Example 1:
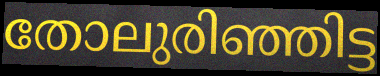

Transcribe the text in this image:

തോലുരിഞ്ഞിട്ട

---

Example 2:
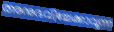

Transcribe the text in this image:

അനുഭവിച്ചേക്കാവുന്ന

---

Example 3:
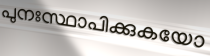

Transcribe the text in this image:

പുനഃസ്ഥാപിക്കുകയോ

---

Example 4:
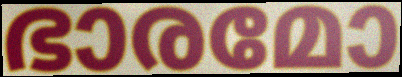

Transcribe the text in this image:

ഭാരമോ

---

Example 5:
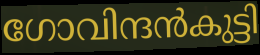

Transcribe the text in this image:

ഗോവിന്ദൻകുട്ടി